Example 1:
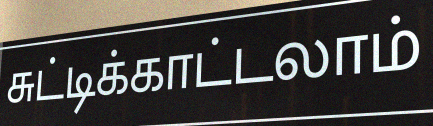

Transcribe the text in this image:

சுட்டிக்காட்டலாம்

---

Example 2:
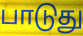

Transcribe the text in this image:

பாடுது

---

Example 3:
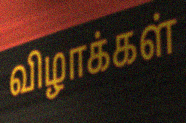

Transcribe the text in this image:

விழாக்கள்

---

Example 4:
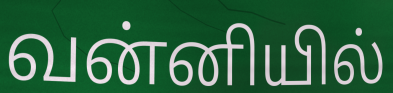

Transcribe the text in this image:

வன்னியில்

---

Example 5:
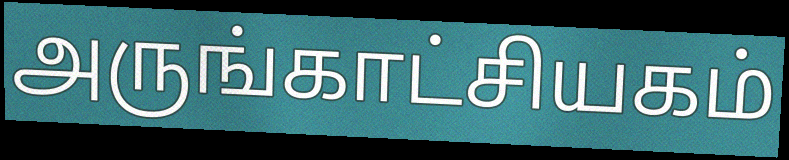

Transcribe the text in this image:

அருங்காட்சியகம்